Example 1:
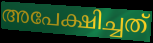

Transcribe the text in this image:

അപേക്ഷിച്ചത്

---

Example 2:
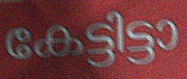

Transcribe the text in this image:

കേട്ടിട്ടാ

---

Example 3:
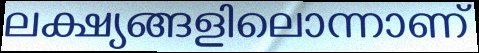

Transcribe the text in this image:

ലക്ഷ്യങ്ങളിലൊന്നാണ്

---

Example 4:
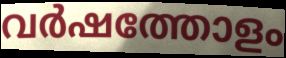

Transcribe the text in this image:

വർഷത്തോളം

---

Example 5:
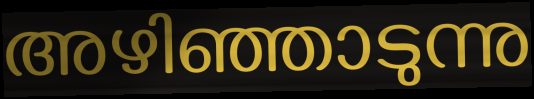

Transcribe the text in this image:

അഴിഞ്ഞാടുന്നു